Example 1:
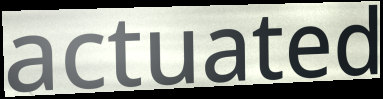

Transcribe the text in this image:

actuated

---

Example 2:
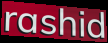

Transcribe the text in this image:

rashid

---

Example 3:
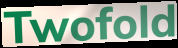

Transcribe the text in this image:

Twofold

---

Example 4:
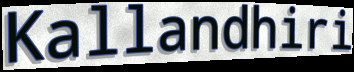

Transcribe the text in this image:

Kallandhiri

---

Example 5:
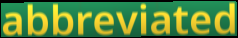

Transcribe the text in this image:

abbreviated